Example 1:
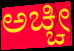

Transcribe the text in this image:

ಅಚ್ಚೀ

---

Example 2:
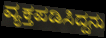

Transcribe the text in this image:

ವ್ಯಕ್ತಪಡಿಸಿದ್ದನು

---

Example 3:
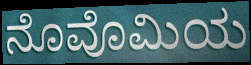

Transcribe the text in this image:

ನೊವೊಮಿಯ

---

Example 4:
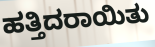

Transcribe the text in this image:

ಹತ್ತಿದರಾಯಿತು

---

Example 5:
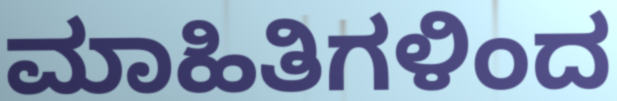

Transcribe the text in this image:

ಮಾಹಿತಿಗಳಿಂದ